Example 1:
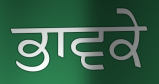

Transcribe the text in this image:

ਭਾਵਕੇ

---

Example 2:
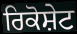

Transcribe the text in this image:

ਰਿਕੋਸ਼ੇਟ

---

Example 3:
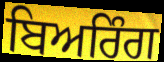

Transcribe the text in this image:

ਬਿਅਰਿੰਗ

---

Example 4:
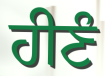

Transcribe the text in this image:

ਹੀਣੰ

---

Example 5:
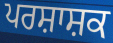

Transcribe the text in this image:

ਪਰਸ਼ਾਸ਼ਕ